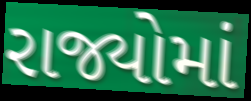
રાજ્યોમાં